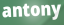
antony